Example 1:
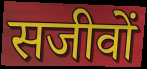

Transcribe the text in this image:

सजीवों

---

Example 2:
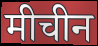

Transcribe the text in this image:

मीचीन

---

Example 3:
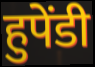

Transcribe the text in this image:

हुपेंडी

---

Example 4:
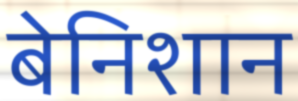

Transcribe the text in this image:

बेनिशान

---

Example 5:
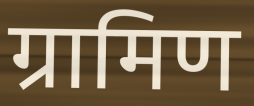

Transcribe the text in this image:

ग्रामिण